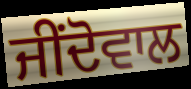
ਜੀਂਦੋਵਾਲ